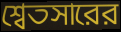
শ্বেতসারের